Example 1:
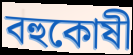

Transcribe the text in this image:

বহুকোষী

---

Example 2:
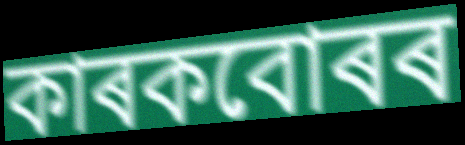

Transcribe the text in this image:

কাৰকবোৰৰ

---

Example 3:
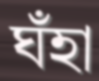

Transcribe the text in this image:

ঘঁহা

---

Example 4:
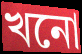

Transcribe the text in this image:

খনো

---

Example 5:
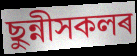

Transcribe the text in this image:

ছুন্নীসকলৰ